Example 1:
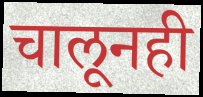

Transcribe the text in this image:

चालूनही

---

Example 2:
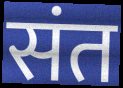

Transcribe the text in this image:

संत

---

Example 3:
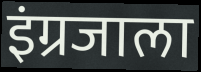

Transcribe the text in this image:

इंग्रजाला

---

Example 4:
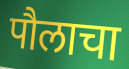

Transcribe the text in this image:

पौलाचा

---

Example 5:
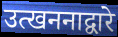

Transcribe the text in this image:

उत्खननाद्वारे